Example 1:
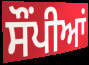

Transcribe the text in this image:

ਸੌਂਪੀਆਂ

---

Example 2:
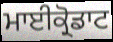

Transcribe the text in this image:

ਮਾਈਕ੍ਰੋਡਾਟ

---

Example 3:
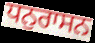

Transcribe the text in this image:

ਧਨੁਰਾਸਨ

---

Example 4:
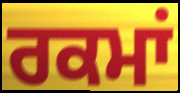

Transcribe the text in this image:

ਰਕਮਾਂ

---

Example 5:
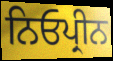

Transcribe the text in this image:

ਨਿਓਪ੍ਰੀਨ